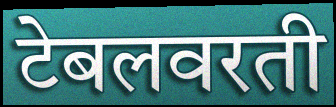
टेबलवरती